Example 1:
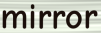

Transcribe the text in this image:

mirror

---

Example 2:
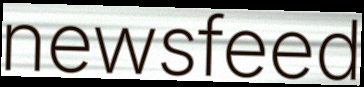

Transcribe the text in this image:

newsfeed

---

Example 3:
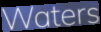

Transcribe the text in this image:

Waters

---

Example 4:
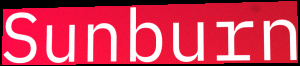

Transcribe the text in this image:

Sunburn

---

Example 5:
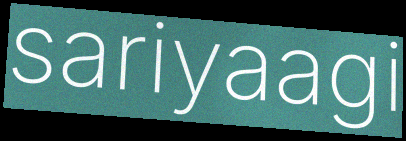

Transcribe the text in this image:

sariyaagi